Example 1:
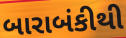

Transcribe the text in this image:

બારાબંકીથી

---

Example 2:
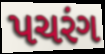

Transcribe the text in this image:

પચરંગ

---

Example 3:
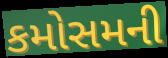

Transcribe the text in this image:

કમોસમની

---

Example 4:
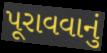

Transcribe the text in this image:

પૂરાવવાનું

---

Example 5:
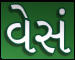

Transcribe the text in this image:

વેસં